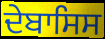
ਦੇਬਾਸਿਸ